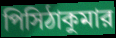
পিসিঠাকুমার